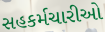
સહકર્મચારીઓ